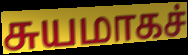
சுயமாகச்